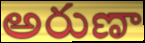
అరుణా